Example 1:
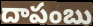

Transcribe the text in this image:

దాపంబు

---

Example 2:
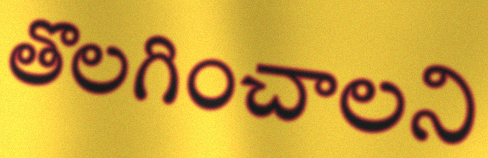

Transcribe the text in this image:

తొలగించాలని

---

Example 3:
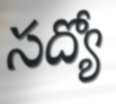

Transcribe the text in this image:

సద్యో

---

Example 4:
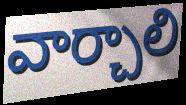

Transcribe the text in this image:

వార్చాలి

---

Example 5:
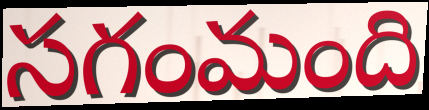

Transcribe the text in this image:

సగంమంది